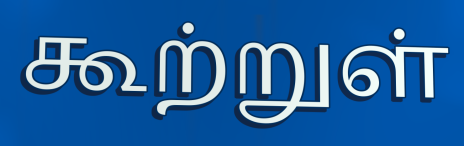
கூற்றுள்